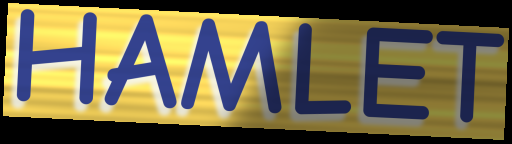
HAMLET